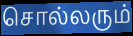
சொல்லரும்